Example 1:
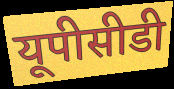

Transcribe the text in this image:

यूपीसीडी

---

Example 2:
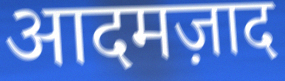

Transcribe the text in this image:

आदमज़ाद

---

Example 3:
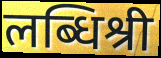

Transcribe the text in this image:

लब्धिश्री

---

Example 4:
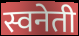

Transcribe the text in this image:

स्वनेती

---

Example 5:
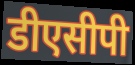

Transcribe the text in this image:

डीएसीपी